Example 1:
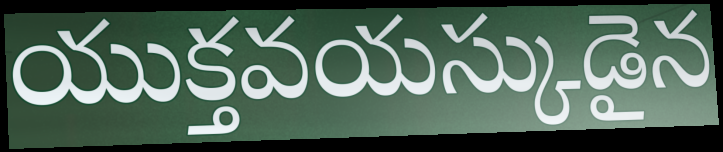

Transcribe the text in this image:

యుక్తవయస్కుడైన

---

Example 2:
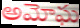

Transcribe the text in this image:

అమోఘ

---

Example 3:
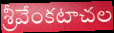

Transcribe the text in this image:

శ్రీవేంకటాచల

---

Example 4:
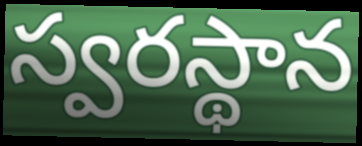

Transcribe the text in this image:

స్వరస్థాన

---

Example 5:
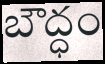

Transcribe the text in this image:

బౌద్ధం